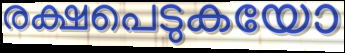
രക്ഷപെടുകയോ